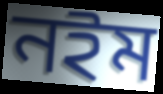
নইম